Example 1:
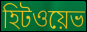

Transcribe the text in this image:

হিটওয়েভ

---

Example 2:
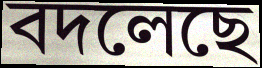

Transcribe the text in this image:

বদলেছে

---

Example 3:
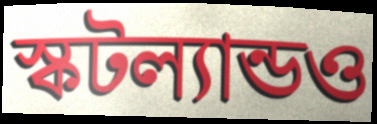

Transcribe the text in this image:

স্কটল্যান্ডও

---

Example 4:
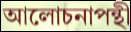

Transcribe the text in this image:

আলোচনাপন্থী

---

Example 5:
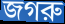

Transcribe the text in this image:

জগরু